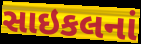
સાઇકલનાં